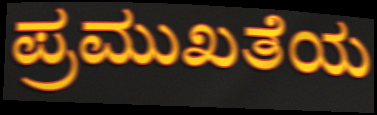
ಪ್ರಮುಖತೆಯ